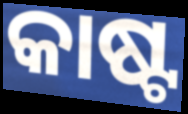
କାଷ୍ଟ